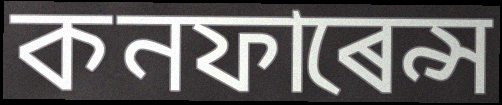
কনফাৰেন্স